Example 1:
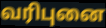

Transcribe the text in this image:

வரிபுனை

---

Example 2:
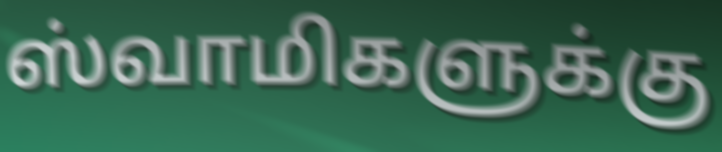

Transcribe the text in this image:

ஸ்வாமிகளுக்கு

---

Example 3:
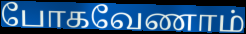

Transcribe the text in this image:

போகவேணாம்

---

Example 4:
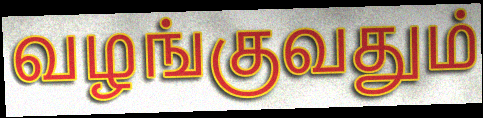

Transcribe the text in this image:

வழங்குவதும்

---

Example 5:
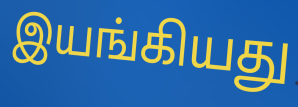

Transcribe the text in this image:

இயங்கியது